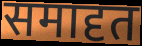
समादृत